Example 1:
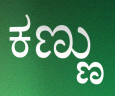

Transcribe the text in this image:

ಕಣ್ಣು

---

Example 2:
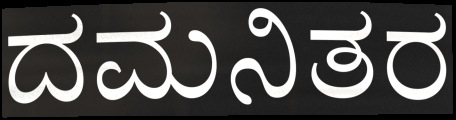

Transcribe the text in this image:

ದಮನಿತರ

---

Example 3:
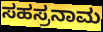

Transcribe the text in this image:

ಸಹಸ್ರನಾಮ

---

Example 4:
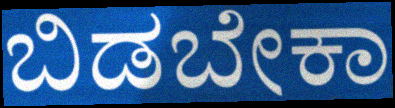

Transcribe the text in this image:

ಬಿಡಬೇಕಾ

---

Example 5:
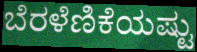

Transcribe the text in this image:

ಬೆರಳೆಣಿಕೆಯಷ್ಟು